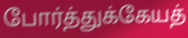
போர்த்துக்கேயத்